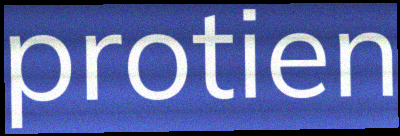
protien